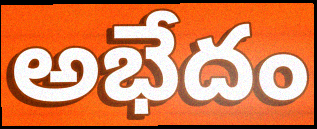
అభేదం